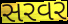
સરવર